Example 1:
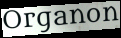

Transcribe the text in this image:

Organon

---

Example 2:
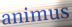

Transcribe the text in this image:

animus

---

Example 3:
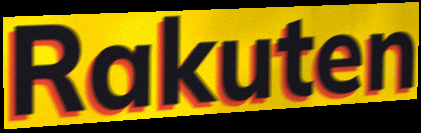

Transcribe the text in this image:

Rakuten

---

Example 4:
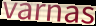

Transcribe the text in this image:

varnas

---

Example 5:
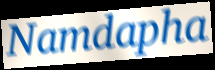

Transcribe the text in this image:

Namdapha